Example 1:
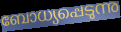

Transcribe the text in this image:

ബോധ്യപ്പെടുന്നു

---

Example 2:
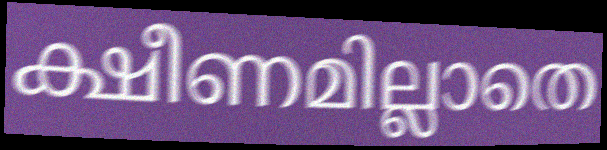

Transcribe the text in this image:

ക്ഷീണമില്ലാതെ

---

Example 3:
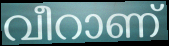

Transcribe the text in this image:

വീറാണ്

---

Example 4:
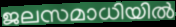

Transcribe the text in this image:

ജലസമാധിയിൽ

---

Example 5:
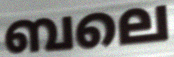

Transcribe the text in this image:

ബലെ